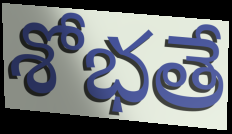
శోభతే